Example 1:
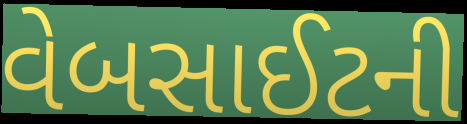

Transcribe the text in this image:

વેબસાઈટની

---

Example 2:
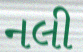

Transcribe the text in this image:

નલી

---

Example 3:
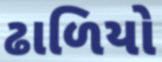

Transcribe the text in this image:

ઢાળિયો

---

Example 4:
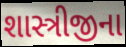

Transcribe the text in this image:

શાસ્ત્રીજીના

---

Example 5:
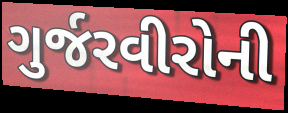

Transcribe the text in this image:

ગુર્જરવીરોની